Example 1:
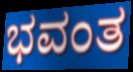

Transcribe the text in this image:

ಭವಂತ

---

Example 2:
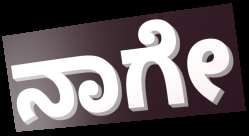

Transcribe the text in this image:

ನಾಗೇ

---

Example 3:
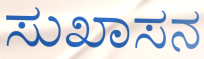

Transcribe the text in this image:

ಸುಖಾಸನ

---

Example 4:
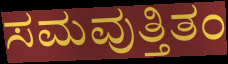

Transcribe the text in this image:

ಸಮವುತ್ತಿತಂ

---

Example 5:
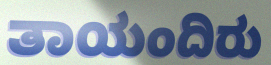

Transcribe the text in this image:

ತಾಯಂದಿರು